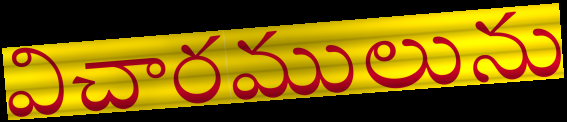
విచారములును